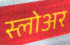
स्लोअर